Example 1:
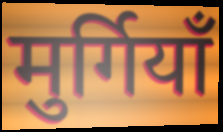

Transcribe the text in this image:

मुर्गियाँ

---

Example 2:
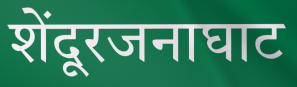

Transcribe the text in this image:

शेंदूरजनाघाट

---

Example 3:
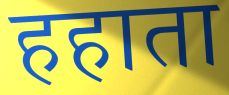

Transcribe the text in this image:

हहाता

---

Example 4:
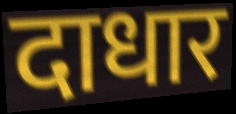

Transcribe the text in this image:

दाधार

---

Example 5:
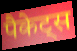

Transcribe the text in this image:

पैकेट्स